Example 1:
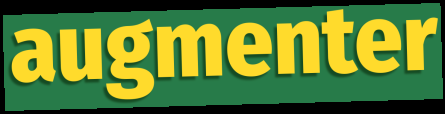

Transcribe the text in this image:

augmenter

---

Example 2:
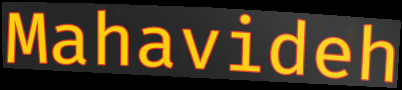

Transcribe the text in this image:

Mahavideh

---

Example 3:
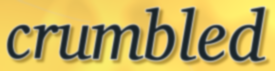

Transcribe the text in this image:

crumbled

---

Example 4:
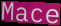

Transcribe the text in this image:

Mace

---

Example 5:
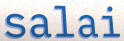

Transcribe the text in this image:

salai